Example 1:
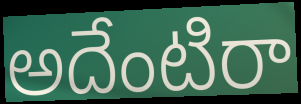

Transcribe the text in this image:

అదేంటిరా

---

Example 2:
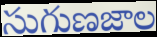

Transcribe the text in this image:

సుగుణజాల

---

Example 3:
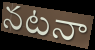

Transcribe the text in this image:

నటనా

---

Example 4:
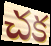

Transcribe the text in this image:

చక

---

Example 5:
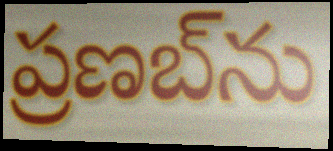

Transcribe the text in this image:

ప్రణబ్‌ను